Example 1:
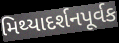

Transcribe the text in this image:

મિથ્યાદર્શનપૂર્વક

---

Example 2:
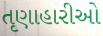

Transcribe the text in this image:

તૃણાહારીઓ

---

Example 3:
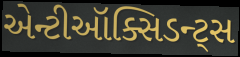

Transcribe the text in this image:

એન્ટીઑક્સિડન્ટ્સ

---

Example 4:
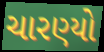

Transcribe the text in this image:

ચારણ્યો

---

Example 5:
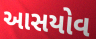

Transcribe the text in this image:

આસયોવ